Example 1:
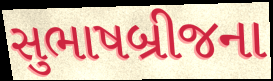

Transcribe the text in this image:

સુભાષબ્રીજના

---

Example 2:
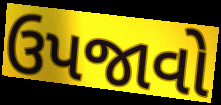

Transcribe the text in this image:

ઉપજાવો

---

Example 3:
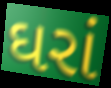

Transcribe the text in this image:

ઘરાં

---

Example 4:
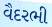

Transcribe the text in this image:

વૈદરભી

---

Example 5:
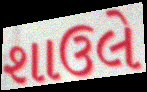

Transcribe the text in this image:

શાઉલે